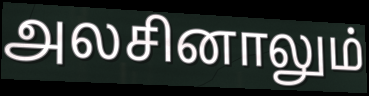
அலசினாலும்